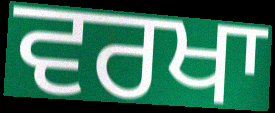
ਵਰਖਾ